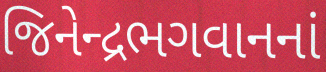
જિનેન્દ્રભગવાનનાં